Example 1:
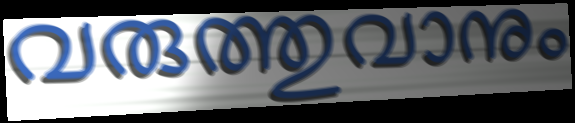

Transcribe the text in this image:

വരുത്തുവാനും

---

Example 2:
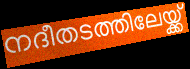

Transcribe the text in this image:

നദീതടത്തിലേയ്ക്ക്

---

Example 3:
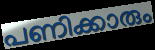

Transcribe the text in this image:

പണിക്കാരും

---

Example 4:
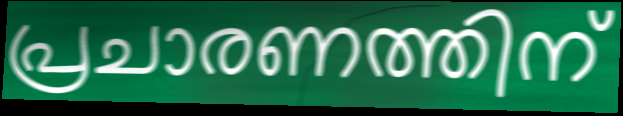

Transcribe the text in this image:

പ്രചാരണത്തിന്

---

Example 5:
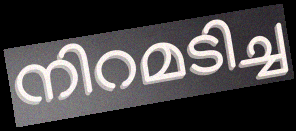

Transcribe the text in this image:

നിറമടിച്ച